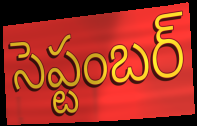
సెప్టంబర్